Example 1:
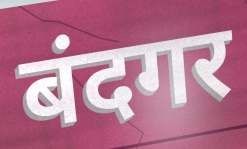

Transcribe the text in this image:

बंदगर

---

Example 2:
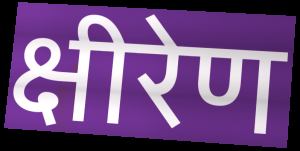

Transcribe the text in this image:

क्षीरेण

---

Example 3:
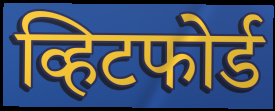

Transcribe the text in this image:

व्हिटफोर्ड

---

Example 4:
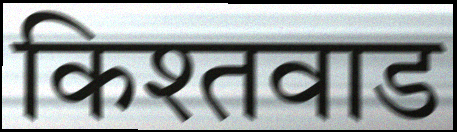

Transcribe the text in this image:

किश्तवाड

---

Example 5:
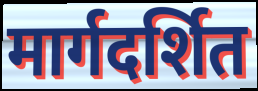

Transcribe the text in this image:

मार्गदर्शित